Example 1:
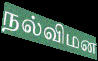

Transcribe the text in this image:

நல்விமன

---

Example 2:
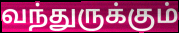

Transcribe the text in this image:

வந்துருக்கும்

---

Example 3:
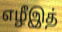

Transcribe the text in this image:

எழீஇத்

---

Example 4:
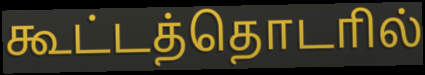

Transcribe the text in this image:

கூட்டத்தொடரில்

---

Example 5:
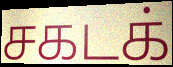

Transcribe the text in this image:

சகடக்